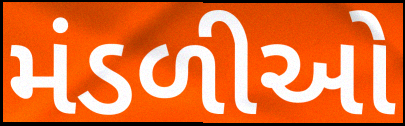
મંડળીઓ